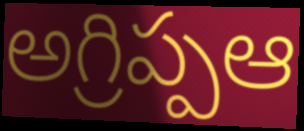
అగ్రిప్పఆ